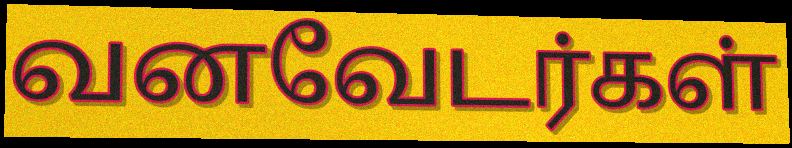
வனவேடர்கள்